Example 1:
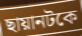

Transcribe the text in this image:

ছায়ানটকে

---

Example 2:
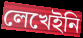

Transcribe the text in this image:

লেখেইনি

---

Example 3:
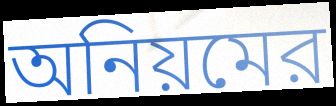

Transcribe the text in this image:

অনিয়মের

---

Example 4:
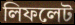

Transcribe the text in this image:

লিফলেট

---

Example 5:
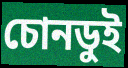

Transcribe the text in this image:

চোনডুই